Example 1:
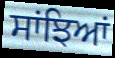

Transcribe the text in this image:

ਸਾਂਝਿਆਂ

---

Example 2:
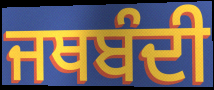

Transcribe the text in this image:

ਜਥਬੰਦੀ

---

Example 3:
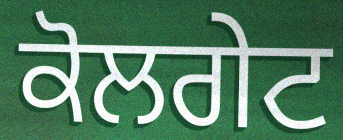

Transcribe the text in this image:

ਕੋਲਗੇਟ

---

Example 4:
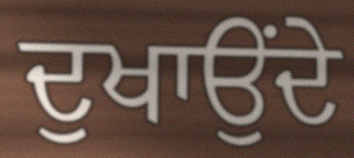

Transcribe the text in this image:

ਦੁਖਾਉਂਦੇ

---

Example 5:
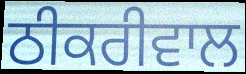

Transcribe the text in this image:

ਠੀਕਰੀਵਾਲ